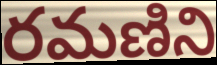
రమణిని